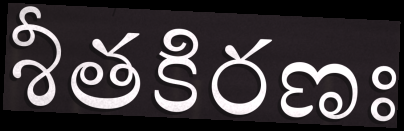
శీతకిరణః